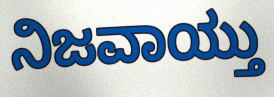
ನಿಜವಾಯ್ತು